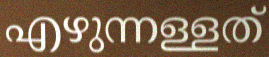
എഴുന്നള്ളത്